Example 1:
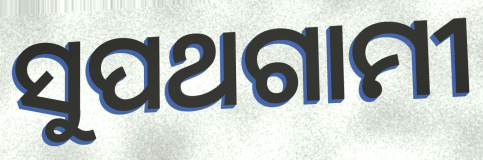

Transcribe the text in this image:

ସୁପଥଗାମୀ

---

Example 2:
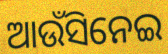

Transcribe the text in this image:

ଆଉଁସିନେଇ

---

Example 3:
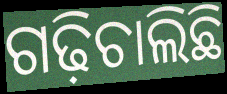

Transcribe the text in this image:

ଗଢ଼ିଚାଲିଛି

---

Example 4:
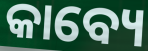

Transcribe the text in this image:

କାବ୍ୟେ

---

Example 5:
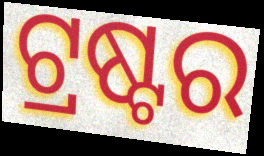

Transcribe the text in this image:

ଟ୍ରଷ୍ଟର